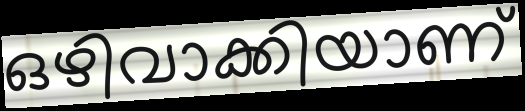
ഒഴിവാക്കിയാണ്